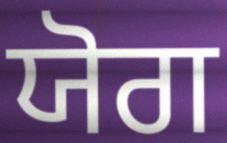
ਯੋਗ